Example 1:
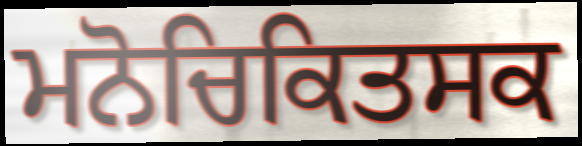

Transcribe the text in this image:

ਮਨੋਚਿਕਿਤਸਕ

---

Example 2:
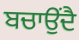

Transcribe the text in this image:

ਬਚਾਉਂਦੈ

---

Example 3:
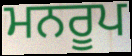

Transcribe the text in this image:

ਮਨਰੂਪ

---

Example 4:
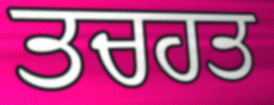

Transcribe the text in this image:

ਤਚਹਤ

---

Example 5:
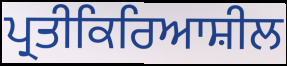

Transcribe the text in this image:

ਪ੍ਰਤੀਕਿਰਿਆਸ਼ੀਲ